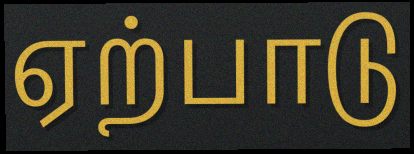
ஏற்பாடு